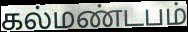
கல்மண்டபம்